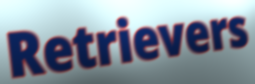
Retrievers